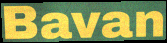
Bavan